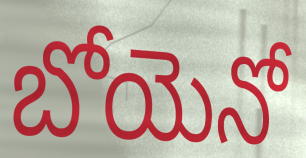
బోయెనో